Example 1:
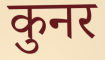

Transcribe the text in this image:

कुनर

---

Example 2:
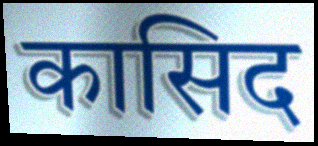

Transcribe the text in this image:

कासिद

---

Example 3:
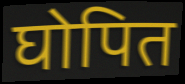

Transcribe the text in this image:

घोपित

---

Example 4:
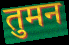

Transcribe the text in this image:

तुमन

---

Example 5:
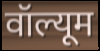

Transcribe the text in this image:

वॉल्यूम